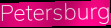
Petersburg